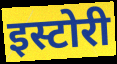
इस्टोरी